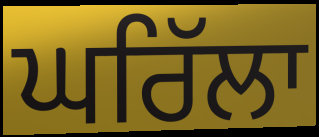
ਘਰਿੱਲਾ